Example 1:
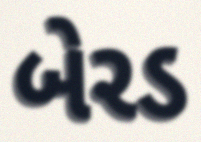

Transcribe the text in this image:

બેરડ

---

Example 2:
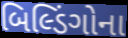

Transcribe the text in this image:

બિલ્ડિંગોના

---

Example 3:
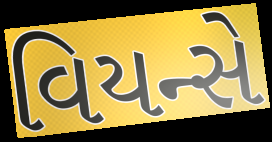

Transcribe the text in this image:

વિયન્સે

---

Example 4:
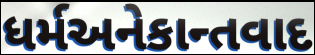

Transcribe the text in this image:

ધર્મઅનેકાન્તવાદ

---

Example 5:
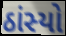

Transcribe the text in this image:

ઠાંસ્યો